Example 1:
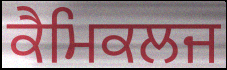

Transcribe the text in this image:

ਕੈਮਿਕਲਜ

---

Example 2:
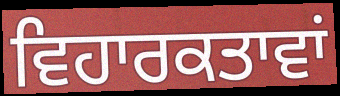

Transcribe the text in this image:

ਵਿਹਾਰਕਤਾਵਾਂ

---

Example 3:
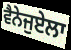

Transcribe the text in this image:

ਵੈਨੇਜੁਏਲਾ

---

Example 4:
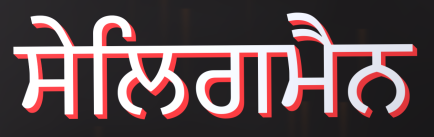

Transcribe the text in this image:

ਸੇਲਿਗਮੈਨ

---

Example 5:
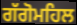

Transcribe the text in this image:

ਗੱਗੋਮਹਿਲ